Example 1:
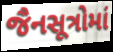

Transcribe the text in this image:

જૈનસૂત્રોમાં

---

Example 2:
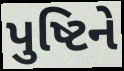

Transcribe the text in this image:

પુષ્ટિને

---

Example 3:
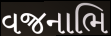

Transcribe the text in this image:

વજ્રનાભિ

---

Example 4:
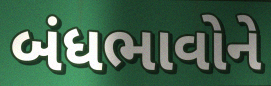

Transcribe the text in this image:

બંધભાવોને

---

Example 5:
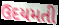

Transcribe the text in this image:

ઉદયમતી